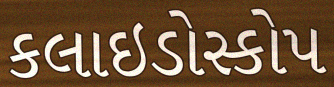
કલાઇડોસ્કોપ